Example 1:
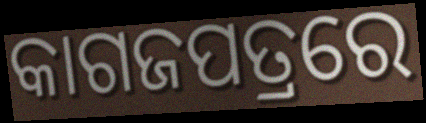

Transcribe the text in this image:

କାଗଜପତ୍ରରେ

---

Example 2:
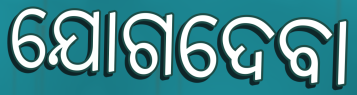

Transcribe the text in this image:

ଯୋଗଦେବା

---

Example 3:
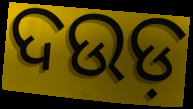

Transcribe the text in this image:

ଦଉଡ଼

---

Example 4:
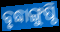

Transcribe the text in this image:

ବୃଦ୍ଧାଙ୍ଗୁଷ୍ଠି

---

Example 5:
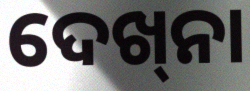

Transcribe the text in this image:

ଦେଖ୍‌ନା